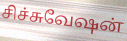
சிச்சுவேஷன்